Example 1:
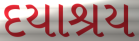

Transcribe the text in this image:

દયાશ્રય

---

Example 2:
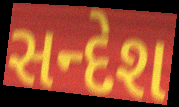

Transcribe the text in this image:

સન્દેશ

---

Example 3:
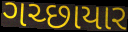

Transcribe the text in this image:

ગચ્છાયાર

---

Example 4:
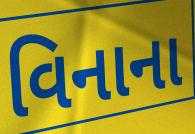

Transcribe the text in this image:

વિનાના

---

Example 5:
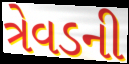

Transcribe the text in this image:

ત્રેવડની